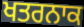
ਖਤਰਨਾਕ